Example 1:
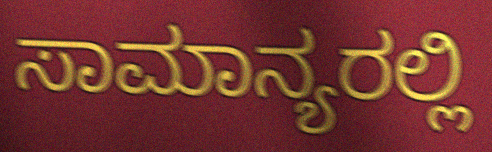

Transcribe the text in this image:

ಸಾಮಾನ್ಯರಲ್ಲಿ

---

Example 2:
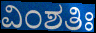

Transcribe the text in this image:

ವಿಂಶತಿಃ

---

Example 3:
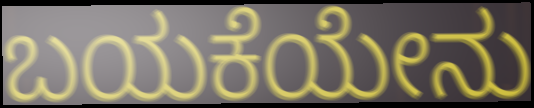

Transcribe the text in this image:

ಬಯಕೆಯೇನು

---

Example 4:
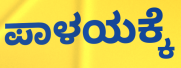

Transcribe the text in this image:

ಪಾಳಯಕ್ಕೆ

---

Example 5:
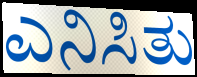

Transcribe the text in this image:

ಎನಿಸಿತು